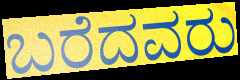
ಬರೆದವರು